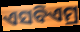
ଏସବିଏମ୍ର